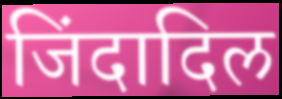
जिंदादिल